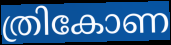
ത്രികോണ